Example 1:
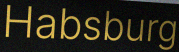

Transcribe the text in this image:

Habsburg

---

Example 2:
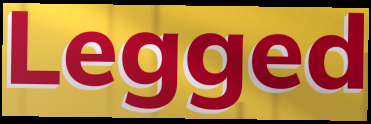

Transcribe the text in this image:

Legged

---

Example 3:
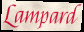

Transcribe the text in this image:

Lampard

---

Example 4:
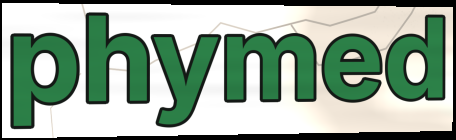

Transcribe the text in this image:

phymed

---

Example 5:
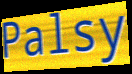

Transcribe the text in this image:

Palsy